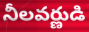
నీలవర్ణుడి